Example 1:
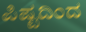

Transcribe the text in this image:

ಪಿಷ್ಟದಿಂದ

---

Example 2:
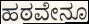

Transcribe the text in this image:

ಹಠವೇನೂ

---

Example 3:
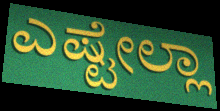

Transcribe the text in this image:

ಎಷ್ಟೇಲ್ಲಾ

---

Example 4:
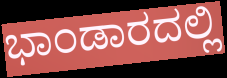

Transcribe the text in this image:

ಭಾಂಡಾರದಲ್ಲಿ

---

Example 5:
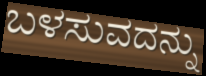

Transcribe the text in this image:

ಬಳಸುವದನ್ನು